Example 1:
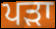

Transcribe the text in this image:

ਪੜਾ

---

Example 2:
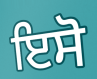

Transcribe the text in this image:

ਇਸੋ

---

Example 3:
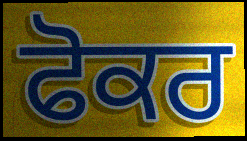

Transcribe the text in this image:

ਫੋਕਰ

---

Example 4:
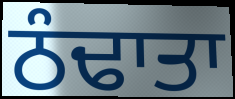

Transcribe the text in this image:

ਠੰਢਾਤਾ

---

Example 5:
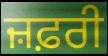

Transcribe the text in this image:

ਜ਼ਫ਼ਰੀ